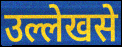
उल्लेखसे